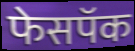
फेसपॅक